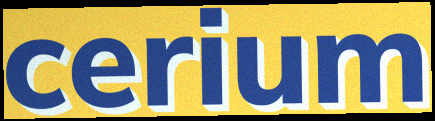
cerium